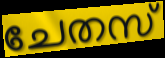
ചേതസ്